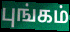
புங்கம்